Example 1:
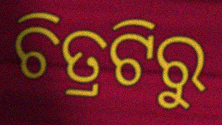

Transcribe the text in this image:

ଚିତ୍ରଟିରୁ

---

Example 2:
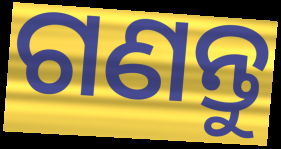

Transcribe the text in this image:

ଗଣନ୍ତୁ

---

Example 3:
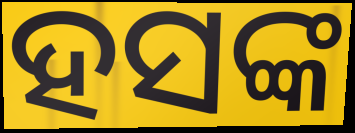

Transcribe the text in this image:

ହସଙ୍କ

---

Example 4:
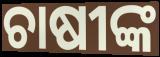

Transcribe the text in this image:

ଚାଷୀଙ୍କ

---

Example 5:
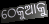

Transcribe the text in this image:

ଠେକୁଆକୁ